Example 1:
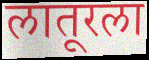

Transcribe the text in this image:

लातूरला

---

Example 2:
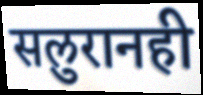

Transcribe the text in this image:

सलुरानही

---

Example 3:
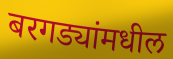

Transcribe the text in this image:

बरगड्यांमधील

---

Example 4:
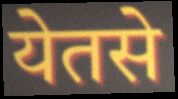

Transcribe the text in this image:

येतसे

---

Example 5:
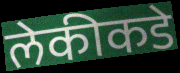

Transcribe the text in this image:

लेकीकडे